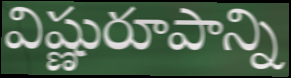
విష్ణురూపాన్ని